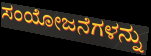
ಸಂಯೋಜನೆಗಳನ್ನು